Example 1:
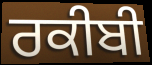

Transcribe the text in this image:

ਰਕੀਬੀ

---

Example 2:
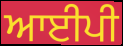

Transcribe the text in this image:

ਆਈਪੀ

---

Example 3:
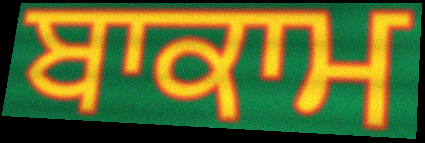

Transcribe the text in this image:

ਬਾਕਾਮ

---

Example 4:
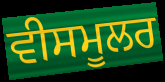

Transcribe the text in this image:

ਵੀਸਮੂਲਰ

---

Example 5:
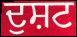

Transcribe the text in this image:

ਦੁਸ਼ਟ